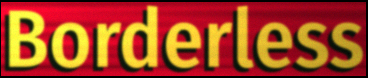
Borderless